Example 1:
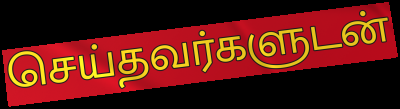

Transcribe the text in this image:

செய்தவர்களுடன்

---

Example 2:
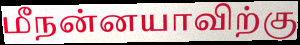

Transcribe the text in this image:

மீநன்னயாவிற்கு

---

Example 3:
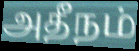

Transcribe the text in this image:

அதீநம்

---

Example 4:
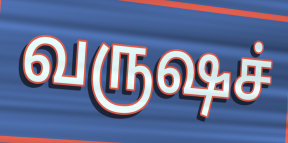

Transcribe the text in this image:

வருஷச்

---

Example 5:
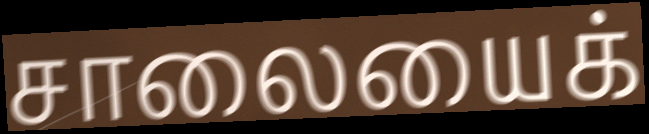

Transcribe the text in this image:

சாலையைக்